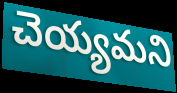
చెయ్యమని